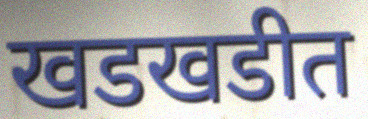
खडखडीत